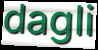
dagli